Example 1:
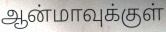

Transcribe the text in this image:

ஆன்மாவுக்குள்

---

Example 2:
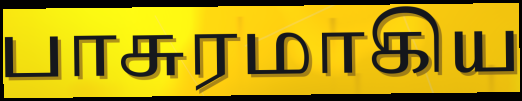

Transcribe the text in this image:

பாசுரமாகிய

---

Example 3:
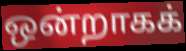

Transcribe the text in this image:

ஒன்றாகக்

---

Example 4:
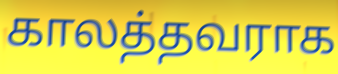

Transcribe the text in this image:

காலத்தவராக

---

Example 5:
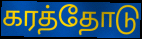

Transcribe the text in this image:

கரத்தோடு